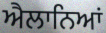
ਐਲਾਨਿਆਂ